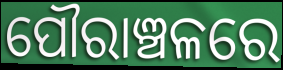
ପୌରାଞ୍ଚଳରେ